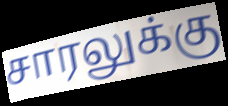
சாரலுக்கு